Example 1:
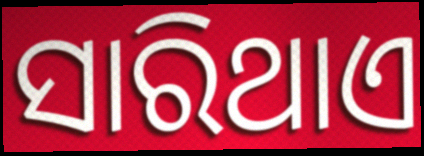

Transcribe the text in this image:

ସାରିଥାଏ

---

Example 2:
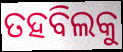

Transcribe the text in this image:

ତହବିଲକୁ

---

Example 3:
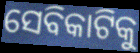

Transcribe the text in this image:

ସେବିକାଟିକୁ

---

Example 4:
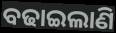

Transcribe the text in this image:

ବଢାଇଲାଣି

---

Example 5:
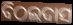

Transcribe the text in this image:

ବିଠଲଦାସ